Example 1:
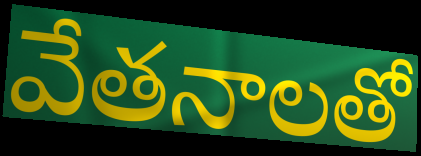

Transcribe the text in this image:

వేతనాలతో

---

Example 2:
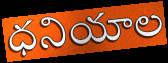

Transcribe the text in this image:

ధనియాల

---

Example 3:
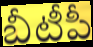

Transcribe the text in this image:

బీటీపీ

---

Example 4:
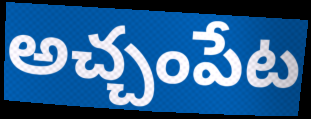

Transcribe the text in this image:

అచ్చంపేట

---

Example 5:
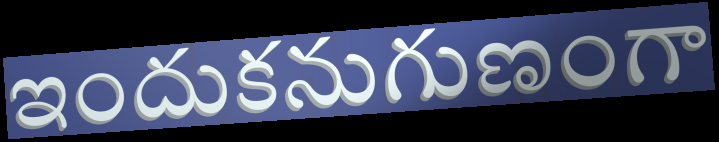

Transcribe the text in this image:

ఇందుకనుగుణంగా